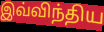
இவ்விந்திய